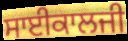
ਸਾਈਕਾਲਜੀ